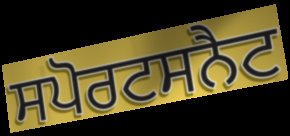
ਸਪੋਰਟਸਨੈਟ